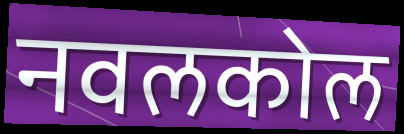
नवलकोल